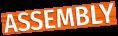
ASSEMBLY